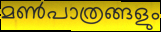
മൺപാത്രങ്ങളും